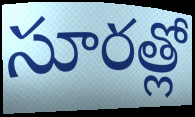
సూరత్లో